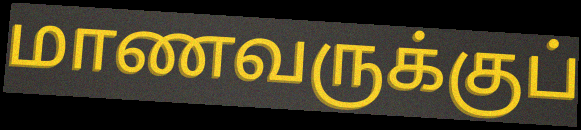
மாணவருக்குப்